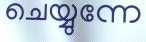
ചെയ്യുന്നേ